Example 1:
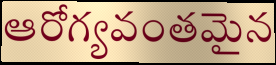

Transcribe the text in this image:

ఆరోగ్యవంతమైన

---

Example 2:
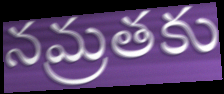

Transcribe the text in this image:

నమ్రతకు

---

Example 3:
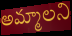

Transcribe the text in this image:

అమ్మాలని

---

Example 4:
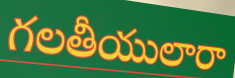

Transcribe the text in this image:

గలతీయులారా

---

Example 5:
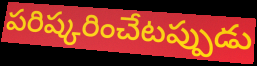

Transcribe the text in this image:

పరిష్కరించేటప్పుడు